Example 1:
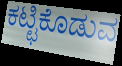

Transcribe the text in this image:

ಕಟ್ಟಿಕೊಡುವ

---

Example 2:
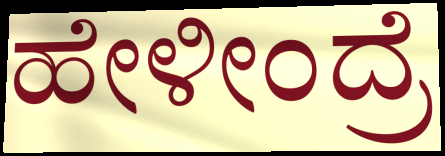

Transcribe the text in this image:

ಹೇಳೀಂದ್ರೆ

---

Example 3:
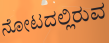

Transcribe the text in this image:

ನೋಟದಲ್ಲಿರುವ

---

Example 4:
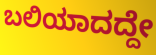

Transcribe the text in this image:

ಬಲಿಯಾದದ್ದೇ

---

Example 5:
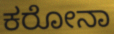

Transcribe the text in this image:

ಕರೋನಾ